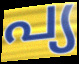
പ്യ